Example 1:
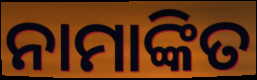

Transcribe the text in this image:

ନାମାଙ୍କିତ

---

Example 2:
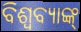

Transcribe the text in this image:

ବିଶ୍ବବ୍ୟାଙ୍କ୍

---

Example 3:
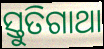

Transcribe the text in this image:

ସ୍ତୁତିଗାଥା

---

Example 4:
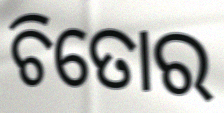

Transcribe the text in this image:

ଚିତୋର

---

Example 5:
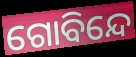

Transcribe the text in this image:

ଗୋବିନ୍ଦେ